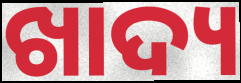
ଖାଦ୍ୟ